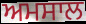
ਅਮਸਾਲ